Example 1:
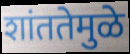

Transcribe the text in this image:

शांततेमुळे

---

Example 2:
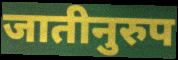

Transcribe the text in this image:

जातीनुरुप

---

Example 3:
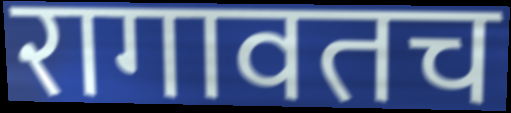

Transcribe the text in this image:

रागावतच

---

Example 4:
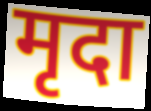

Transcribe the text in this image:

मृदा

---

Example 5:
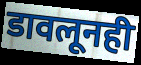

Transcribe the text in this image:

डावलूनही